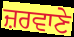
ਜ਼ਰਵਾਣੇ